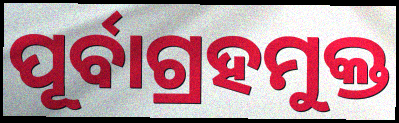
ପୂର୍ବାଗ୍ରହମୁକ୍ତ